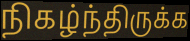
நிகழ்ந்திருக்க